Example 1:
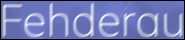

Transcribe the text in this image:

Fehderau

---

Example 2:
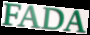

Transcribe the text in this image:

FADA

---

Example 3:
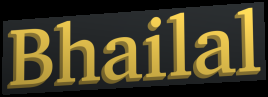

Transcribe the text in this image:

Bhailal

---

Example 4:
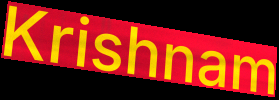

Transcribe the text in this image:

Krishnam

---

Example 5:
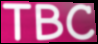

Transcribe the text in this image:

TBC